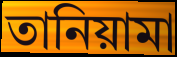
তানিয়ামা